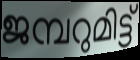
ജമ്പറുമിട്ട്